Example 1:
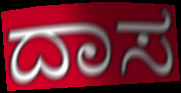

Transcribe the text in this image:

ದಾಸ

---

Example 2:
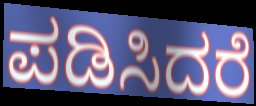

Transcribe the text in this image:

ಪಡಿಸಿದರೆ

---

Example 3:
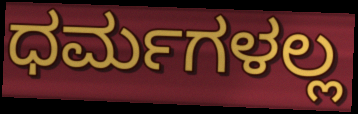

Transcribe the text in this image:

ಧರ್ಮಗಳಲ್ಲ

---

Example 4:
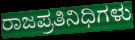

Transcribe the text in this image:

ರಾಜಪ್ರತಿನಿಧಿಗಳು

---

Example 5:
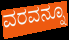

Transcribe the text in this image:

ವರವನ್ನೂ